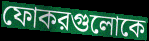
ফোকরগুলোকে